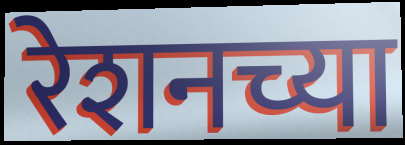
रेशनच्या